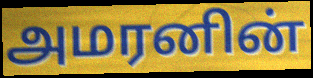
அமரனின்